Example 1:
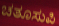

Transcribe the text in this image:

ಚತೂಸುಪಿ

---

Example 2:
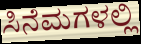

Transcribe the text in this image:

ಸಿನೆಮಗಳಲ್ಲಿ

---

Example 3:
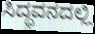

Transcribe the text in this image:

ಸಿದ್ಧವನದಲ್ಲಿ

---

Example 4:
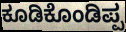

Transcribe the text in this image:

ಕೂಡಿಕೊಂಡಿಪ್ಪ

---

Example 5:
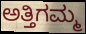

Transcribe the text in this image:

ಅತ್ತಿಗಮ್ಮ